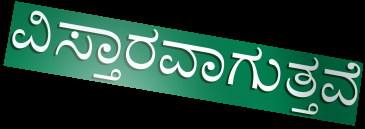
ವಿಸ್ತಾರವಾಗುತ್ತವೆ